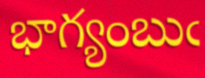
భాగ్యంబుఁ